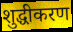
शुद्धीकरण